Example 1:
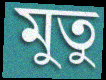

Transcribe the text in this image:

মুতু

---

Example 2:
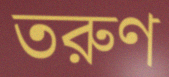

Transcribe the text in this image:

তরুণ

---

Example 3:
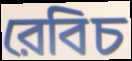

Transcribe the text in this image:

রেবিচ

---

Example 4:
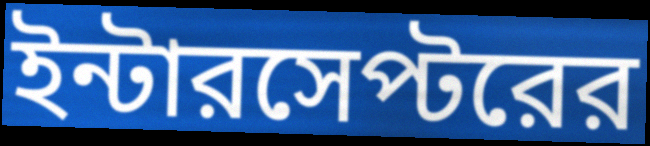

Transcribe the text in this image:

ইন্টারসেপ্টরের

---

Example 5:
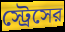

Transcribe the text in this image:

স্ট্রেসের